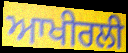
ਆਖੀਰਲੀ